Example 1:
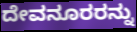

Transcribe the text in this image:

ದೇವನೂರರನ್ನು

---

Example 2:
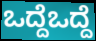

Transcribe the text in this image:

ಒದ್ದೆಒದ್ದೆ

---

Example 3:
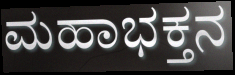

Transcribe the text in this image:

ಮಹಾಭಕ್ತನ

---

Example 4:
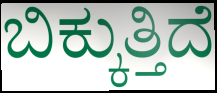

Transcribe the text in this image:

ಬಿಕ್ಕುತ್ತಿದೆ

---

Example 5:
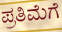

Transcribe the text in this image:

ಪ್ರತಿಮೆಗೆ